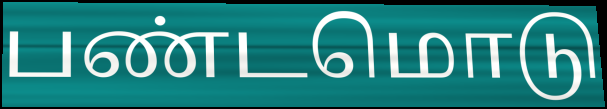
பண்டமொடு